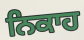
ਨਿਕਾਹ